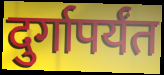
दुर्गापर्यंत